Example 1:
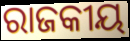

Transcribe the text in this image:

ରାଜକୀୟ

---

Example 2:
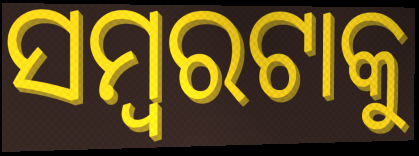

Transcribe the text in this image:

ସମ୍ବରଟାକୁ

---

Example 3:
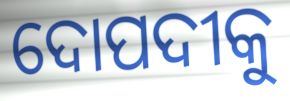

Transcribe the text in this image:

ଦୋପଦୀକୁ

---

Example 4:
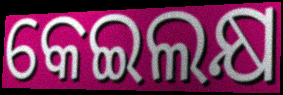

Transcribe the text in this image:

କେଇଲକ୍ଷ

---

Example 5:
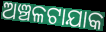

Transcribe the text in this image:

ଅଞ୍ଚଳଟାଯାକ